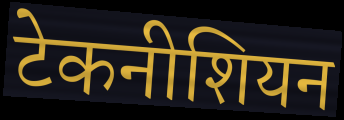
टेकनीशियन